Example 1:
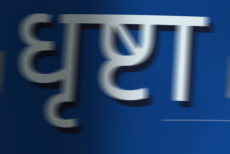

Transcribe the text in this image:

धृष्टा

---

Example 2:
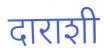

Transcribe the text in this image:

दाराशी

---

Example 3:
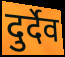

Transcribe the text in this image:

दुर्देव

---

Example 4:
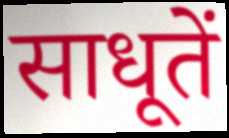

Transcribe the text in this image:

साधूतें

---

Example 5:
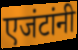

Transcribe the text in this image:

एजंटांनी